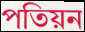
পতিয়ন